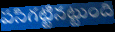
పసిగట్టినట్టుంది